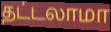
தட்டலாமா